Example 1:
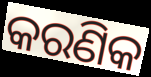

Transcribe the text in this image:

କରଣିକ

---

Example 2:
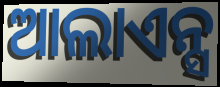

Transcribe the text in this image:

ଆଲାଏନ୍ସ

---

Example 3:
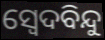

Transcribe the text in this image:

ସ୍ୱେଦବିନ୍ଦୁ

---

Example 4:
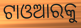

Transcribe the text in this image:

ଟାଓଆରକୁ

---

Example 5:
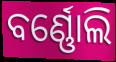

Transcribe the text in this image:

ବର୍ଣ୍ଣୋଲି